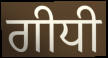
ਗੀਧੀ